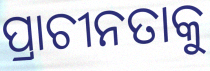
ପ୍ରାଚୀନତାକୁ